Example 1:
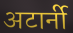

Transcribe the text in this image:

अटार्नी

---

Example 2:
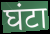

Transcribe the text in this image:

घंटा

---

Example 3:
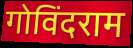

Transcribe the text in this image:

गोविंदराम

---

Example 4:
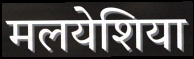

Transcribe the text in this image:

मलयेशिया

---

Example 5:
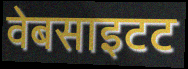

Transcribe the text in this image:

वेबसाइटट